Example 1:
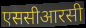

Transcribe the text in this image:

एससीआरसी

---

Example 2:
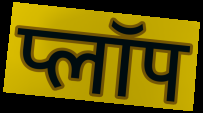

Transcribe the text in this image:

प्लॉप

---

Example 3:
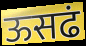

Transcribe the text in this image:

ऊसढं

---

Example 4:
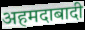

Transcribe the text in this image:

अहमदाबादी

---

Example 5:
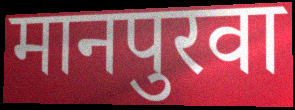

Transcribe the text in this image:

मानपुरवा